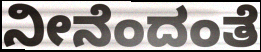
ನೀನೆಂದಂತೆ